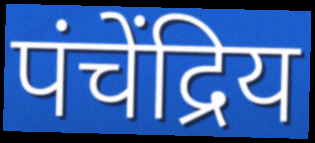
पंचेंद्रिय